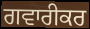
ਗਵਾਰੀਕਰ